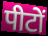
पीटों